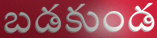
బడకుండ